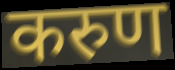
करुण